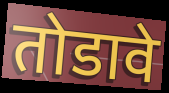
तोडावे